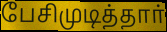
பேசிமுடித்தார்